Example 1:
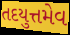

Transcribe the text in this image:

તદયુત્તમેવ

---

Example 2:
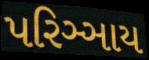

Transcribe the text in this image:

પરિઞ્ઞાય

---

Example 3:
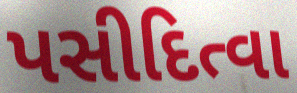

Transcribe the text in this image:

પસીદિત્વા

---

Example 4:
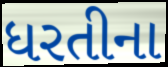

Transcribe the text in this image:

ધરતીના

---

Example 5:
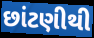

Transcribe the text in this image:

છાંટણીથી